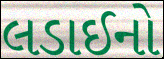
લડાઈનો